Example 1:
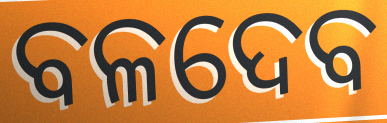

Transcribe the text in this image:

ବଳଦେବ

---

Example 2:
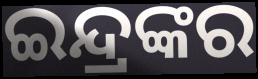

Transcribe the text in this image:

ଇନ୍ଦ୍ରଙ୍କର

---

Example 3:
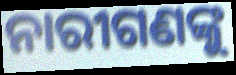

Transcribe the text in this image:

ନାରୀଗଣଙ୍କୁ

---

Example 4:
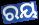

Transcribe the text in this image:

ରୟ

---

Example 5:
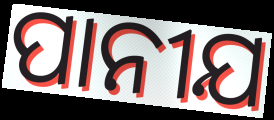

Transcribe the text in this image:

ପାନୀଯ